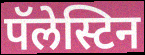
पॅलेस्टिन